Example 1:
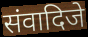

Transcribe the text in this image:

संवादिजे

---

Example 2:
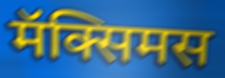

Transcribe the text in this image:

मॅक्सिमस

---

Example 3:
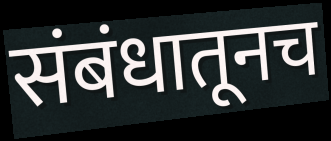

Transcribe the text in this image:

संबंधातूनच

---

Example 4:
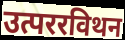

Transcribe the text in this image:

उत्पररविथन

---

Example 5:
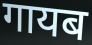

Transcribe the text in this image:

गायब